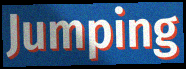
Jumping